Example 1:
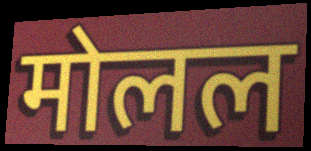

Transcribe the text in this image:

मोलल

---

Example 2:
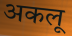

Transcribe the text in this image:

अकलू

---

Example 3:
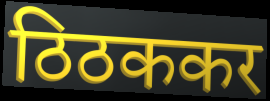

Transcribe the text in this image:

ठिठककर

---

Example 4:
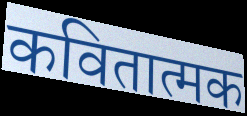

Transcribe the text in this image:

कवितात्मक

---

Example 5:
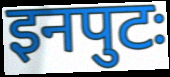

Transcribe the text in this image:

इनपुटः